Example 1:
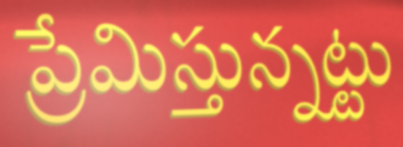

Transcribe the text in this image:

ప్రేమిస్తున్నట్టు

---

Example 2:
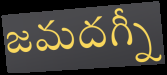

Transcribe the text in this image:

జమదగ్నీ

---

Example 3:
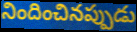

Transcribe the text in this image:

నిందించినప్పుడు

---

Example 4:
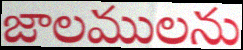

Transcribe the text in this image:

జాలములను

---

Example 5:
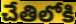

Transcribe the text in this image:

చేతిలోకి